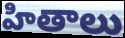
హితాలు